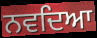
ਨਵਦਿਆ